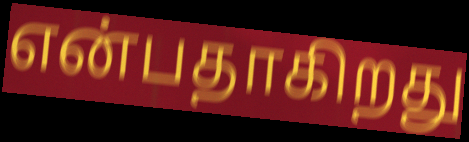
என்பதாகிறது